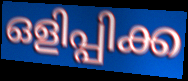
ഒളിപ്പിക്ക